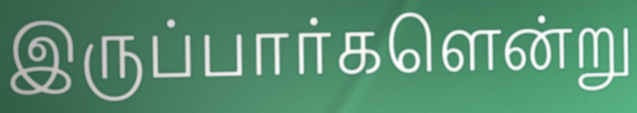
இருப்பார்களென்று